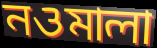
নওমালা